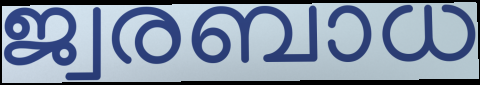
ജ്വരബാധ